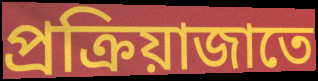
প্রক্রিয়াজাতে